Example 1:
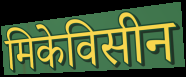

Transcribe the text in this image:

मिकेविसीन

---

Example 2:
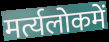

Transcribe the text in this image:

मर्त्यलोकमें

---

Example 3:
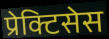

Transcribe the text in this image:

प्रेक्टिसेस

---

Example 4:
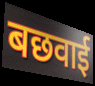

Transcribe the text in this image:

बछवाई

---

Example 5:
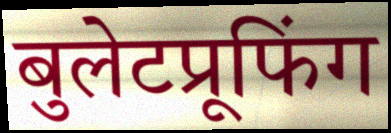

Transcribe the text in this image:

बुलेटप्रूफिंग